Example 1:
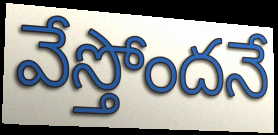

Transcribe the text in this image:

వేస్తోందనే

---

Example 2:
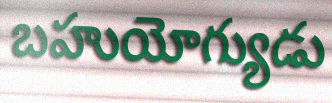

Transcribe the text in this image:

బహుయోగ్యుడు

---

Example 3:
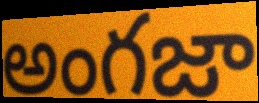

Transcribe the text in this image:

అంగజా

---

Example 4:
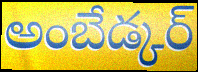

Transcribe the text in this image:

అంబేడ్కర్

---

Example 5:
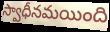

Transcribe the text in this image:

స్వాధీనమయింది